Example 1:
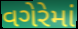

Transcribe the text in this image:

વગેરેમાં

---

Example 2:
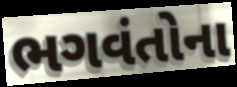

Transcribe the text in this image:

ભગવંતોના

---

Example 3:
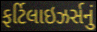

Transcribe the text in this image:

ફર્ટિલાઇઝર્સનું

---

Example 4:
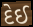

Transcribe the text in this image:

દેઈ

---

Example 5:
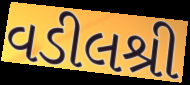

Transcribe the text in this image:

વડીલશ્રી